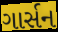
ગાર્સન